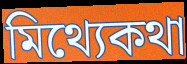
মিথ্যেকথা